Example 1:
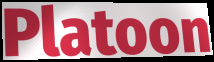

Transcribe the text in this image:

Platoon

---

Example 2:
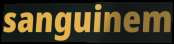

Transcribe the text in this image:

sanguinem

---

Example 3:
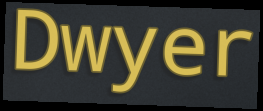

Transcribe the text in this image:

Dwyer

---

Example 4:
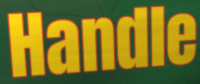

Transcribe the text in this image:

Handle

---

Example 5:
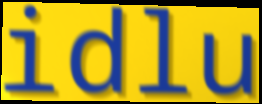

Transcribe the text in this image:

idlu